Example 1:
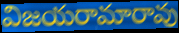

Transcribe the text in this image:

విజయరామారావు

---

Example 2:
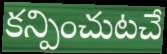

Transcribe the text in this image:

కన్పించుటచే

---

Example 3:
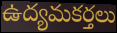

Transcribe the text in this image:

ఉద్యమకర్తలు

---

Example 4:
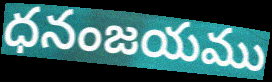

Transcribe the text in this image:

ధనంజయము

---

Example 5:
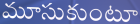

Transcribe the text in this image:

మూసుకుంటూ